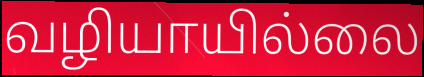
வழியாயில்லை